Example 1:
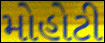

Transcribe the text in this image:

મોહોટી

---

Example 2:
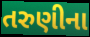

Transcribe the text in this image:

તરુણીના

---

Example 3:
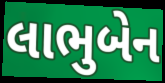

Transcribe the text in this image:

લાભુબેન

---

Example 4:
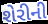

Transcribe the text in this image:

શેરીની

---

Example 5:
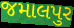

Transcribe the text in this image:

જમાલપુર